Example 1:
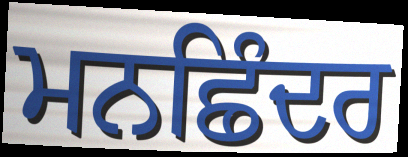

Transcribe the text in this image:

ਮਨਛਿੰਦਰ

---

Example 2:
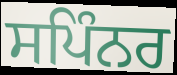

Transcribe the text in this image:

ਸਪਿੰਨਰ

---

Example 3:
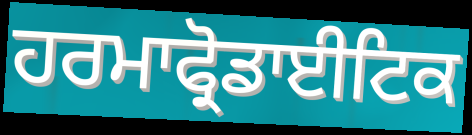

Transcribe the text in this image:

ਹਰਮਾਫ੍ਰੋਡਾਈਟਿਕ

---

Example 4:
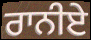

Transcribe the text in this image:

ਰਾਨੀਏ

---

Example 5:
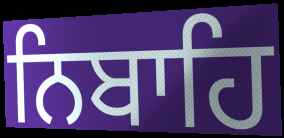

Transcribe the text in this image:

ਨਿਬਾਹਿ